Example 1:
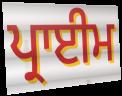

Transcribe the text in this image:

ਪ੍ਰਾਈਮ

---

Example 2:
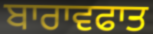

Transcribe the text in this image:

ਬਾਰਾਵਫਾਤ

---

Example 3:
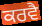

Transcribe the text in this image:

ਕਰਵੈ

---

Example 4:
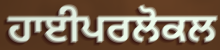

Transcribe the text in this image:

ਹਾਈਪਰਲੋਕਲ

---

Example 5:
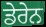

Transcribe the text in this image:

ਡੇਰੇਨ